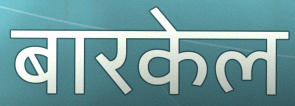
बारकेल